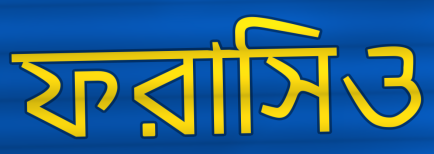
ফরাসিও